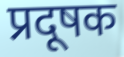
प्रदूषक